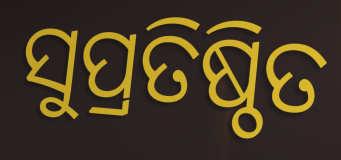
ସୁପ୍ରତିଷ୍ଠିତ